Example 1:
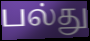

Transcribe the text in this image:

பல்து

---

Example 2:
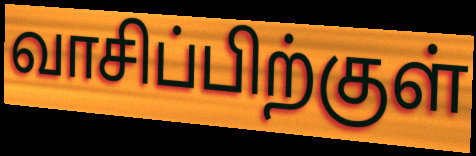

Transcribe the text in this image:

வாசிப்பிற்குள்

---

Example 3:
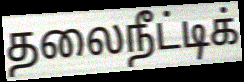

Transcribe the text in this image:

தலைநீட்டிக்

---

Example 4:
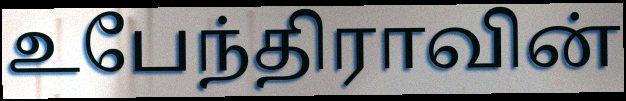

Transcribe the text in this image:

உபேந்திராவின்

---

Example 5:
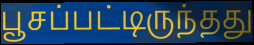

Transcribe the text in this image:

பூசப்பட்டிருந்தது